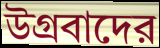
উগ্রবাদের